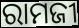
ରାମଜୀ